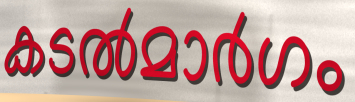
കടൽമാർഗം